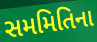
સમમિતિના